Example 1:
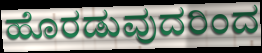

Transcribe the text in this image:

ಹೊರಡುವುದರಿಂದ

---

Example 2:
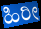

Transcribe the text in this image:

ಹಿರೀ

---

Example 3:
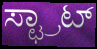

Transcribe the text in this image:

ಸ್ಟ್ರಾಟ್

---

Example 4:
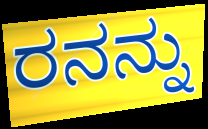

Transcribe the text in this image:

ರನನ್ನು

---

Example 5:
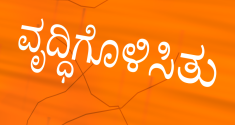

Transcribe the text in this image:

ವೃದ್ಧಿಗೊಳಿಸಿತು